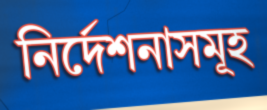
নির্দেশনাসমূহ